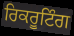
ਰਿਕਰੂਟਿੰਗ